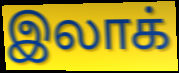
இலாக்